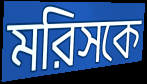
মরিসকে